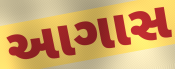
આગાસ